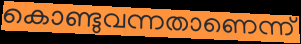
കൊണ്ടുവന്നതാണെന്ന്